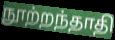
நூற்றந்தாதி